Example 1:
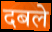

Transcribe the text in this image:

दबले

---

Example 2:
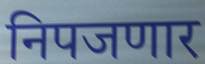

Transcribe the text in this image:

निपजणार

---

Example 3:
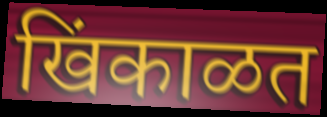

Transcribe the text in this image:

खिंकाळत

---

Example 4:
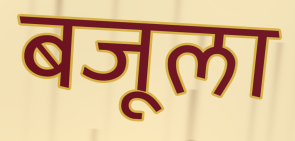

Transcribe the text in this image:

बजूला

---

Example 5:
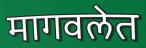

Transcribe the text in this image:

मागवलेत